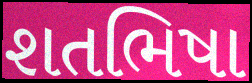
શતભિષા